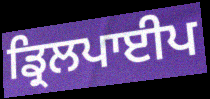
ਡ੍ਰਿਲਪਾਈਪ